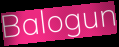
Balogun